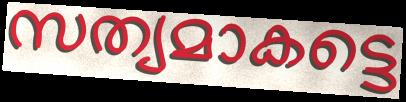
സത്യമാകട്ടെ